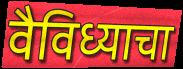
वैविध्याचा